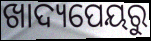
ଖାଦ୍ୟପେୟରୁ